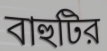
বাহুটির